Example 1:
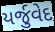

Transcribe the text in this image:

યર્જુવેદ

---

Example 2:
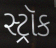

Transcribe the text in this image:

સ્ટ્રૉક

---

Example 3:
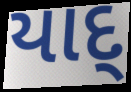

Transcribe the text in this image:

યાદ્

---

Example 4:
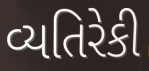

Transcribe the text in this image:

વ્યતિરેકી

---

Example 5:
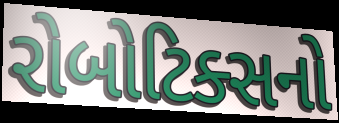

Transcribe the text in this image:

રોબોટિક્સનો